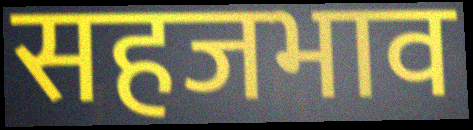
सहजभाव